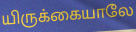
யிருக்கையாலே